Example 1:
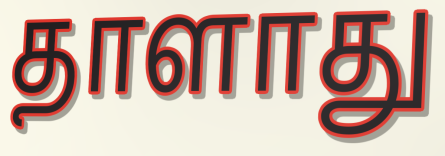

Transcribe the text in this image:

தாளாது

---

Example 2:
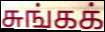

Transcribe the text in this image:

சுங்கக்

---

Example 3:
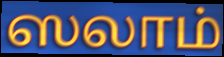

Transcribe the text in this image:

ஸலாம்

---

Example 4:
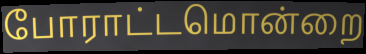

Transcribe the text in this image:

போராட்டமொன்றை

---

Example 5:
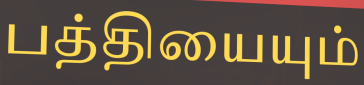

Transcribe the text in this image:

பத்தியையும்